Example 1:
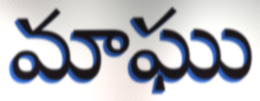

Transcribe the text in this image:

మాఘు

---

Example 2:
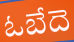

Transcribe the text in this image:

ఓబేదె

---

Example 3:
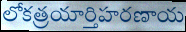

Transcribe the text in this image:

లోకత్రయార్తిహరణాయ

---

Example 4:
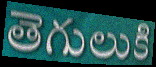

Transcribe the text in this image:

తెగులుకి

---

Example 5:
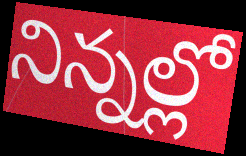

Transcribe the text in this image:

నిన్నల్లో